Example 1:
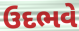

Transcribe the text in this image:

ઉદભવે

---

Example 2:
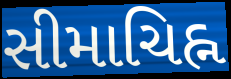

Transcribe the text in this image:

સીમાચિહ્ન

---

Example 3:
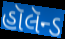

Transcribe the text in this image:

હૉલૅન્ડ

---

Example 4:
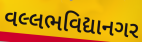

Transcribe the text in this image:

વલ્લભવિદ્યાનગર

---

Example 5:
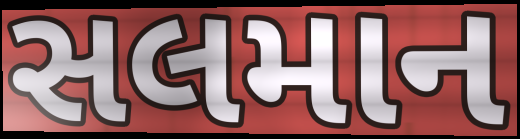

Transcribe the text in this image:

સલમાન